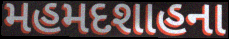
મહમદશાહના